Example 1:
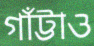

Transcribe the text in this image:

গাঁট্টাও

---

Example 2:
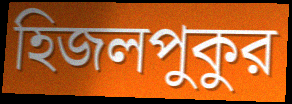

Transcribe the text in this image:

হিজলপুকুর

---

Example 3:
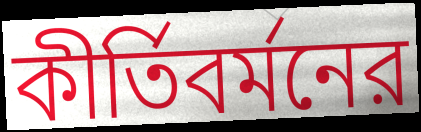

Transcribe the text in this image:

কীর্তিবর্মনের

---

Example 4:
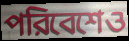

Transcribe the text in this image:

পরিবেশেও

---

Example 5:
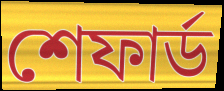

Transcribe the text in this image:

শেফার্ড